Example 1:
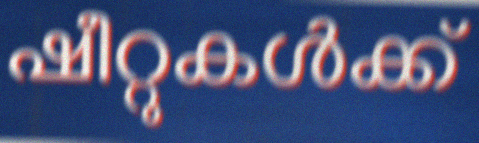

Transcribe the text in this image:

ഷീറ്റുകൾക്ക്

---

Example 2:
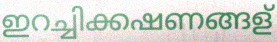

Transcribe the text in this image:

ഇറച്ചിക്കഷണങ്ങള്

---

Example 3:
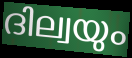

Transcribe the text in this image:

ദില്വയും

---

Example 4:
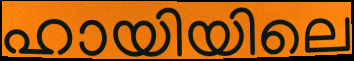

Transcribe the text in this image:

ഹായിയിലെ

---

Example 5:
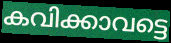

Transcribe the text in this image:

കവിക്കാവട്ടെ